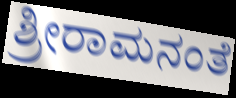
ಶ್ರೀರಾಮನಂತೆ